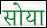
सोया